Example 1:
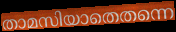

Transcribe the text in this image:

താമസിയാതെതന്നെ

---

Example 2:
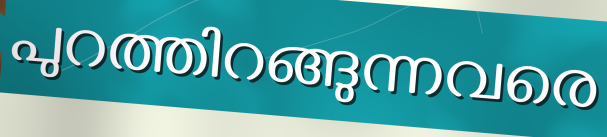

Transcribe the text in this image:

പുറത്തിറങ്ങുന്നവരെ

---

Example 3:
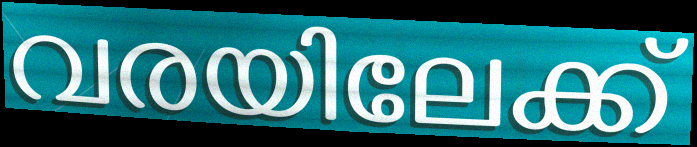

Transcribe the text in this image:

വരയിലേക്ക്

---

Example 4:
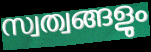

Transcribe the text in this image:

സ്വത്വങ്ങളും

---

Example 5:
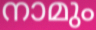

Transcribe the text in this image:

നാമും